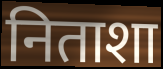
निताशा